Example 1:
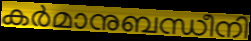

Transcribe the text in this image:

കർമാനുബന്ധീനി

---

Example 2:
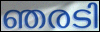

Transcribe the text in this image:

ഞരടി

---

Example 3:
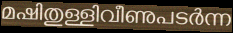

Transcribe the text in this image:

മഷിതുള്ളിവീണുപടർന്ന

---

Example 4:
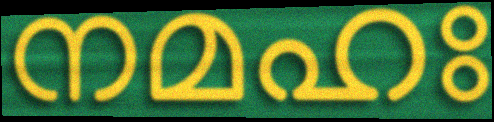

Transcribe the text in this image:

നമഹഃ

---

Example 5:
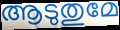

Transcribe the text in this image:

ആടുതുമേ